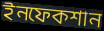
ইনফেকশান